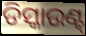
ଡିସ୍କାଉଣ୍ଟ୍